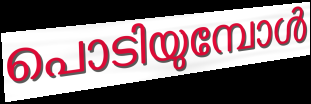
പൊടിയുമ്പോൾ